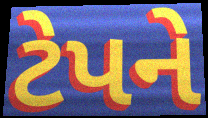
ટેપને